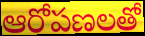
ఆరోపణలతో